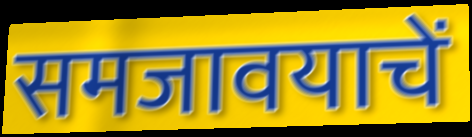
समजावयाचें